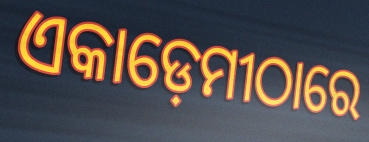
ଏକାଡ଼େମୀଠାରେ